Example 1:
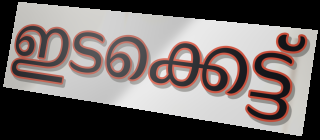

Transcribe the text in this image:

ഇടക്കെട്ട്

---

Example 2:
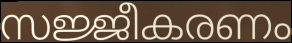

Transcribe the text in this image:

സജ്ജീകരണം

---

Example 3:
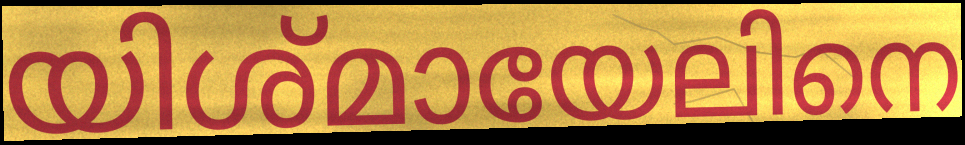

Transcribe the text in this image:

യിശ്മായേലിനെ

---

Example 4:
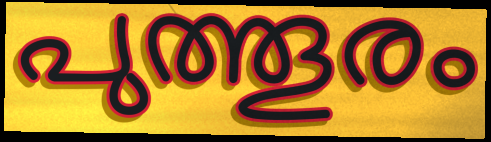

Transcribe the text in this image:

പുത്തൂരം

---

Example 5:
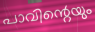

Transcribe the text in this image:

പാവിന്റെയും